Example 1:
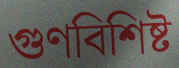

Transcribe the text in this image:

গুণবিশিষ্ট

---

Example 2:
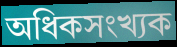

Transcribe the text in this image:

অধিকসংখ্যক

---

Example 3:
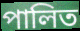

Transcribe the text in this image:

পালিত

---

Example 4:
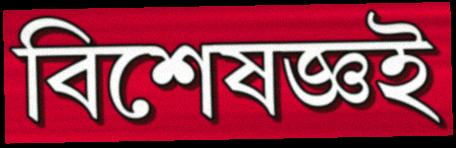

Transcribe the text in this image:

বিশেষজ্ঞই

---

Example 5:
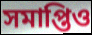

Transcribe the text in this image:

সমাপ্তিও